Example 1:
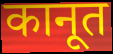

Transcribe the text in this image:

कानूत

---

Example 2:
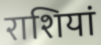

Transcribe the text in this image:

राशियां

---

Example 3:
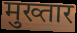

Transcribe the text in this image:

मुख्तार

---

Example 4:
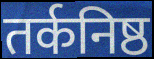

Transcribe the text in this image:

तर्कनिष्ठ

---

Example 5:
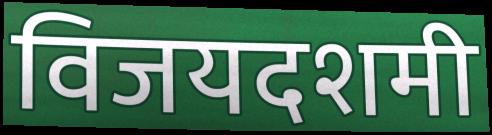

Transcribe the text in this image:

विजयदशमी